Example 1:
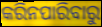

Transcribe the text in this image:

କରିନପାରିବାରୁ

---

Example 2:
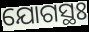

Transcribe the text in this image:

ଯୋଗସ୍ଥଃ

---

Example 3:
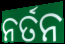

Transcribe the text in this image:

ନର୍ତନ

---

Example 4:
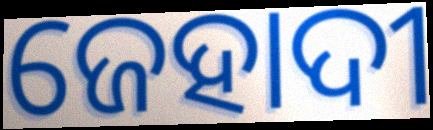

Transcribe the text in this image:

ଜେହାଦୀ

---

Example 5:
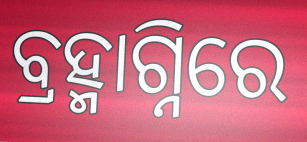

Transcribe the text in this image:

ବ୍ରହ୍ମାଗ୍ନିରେ